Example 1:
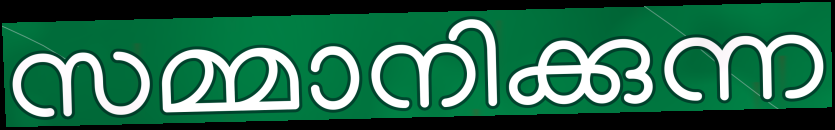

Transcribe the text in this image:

സമ്മാനിക്കുന്ന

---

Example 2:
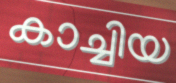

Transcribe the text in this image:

കാച്ചിയ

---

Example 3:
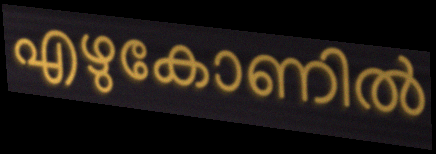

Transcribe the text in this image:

എഴുകോണിൽ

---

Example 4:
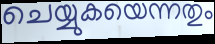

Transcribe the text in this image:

ചെയ്യുകയെന്നതും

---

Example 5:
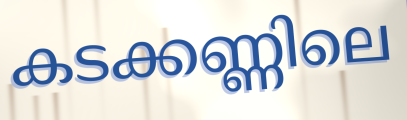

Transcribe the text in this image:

കടക്കണ്ണിലെ